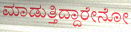
ಮಾಡುತ್ತಿದ್ದಾರೇನೋ